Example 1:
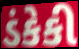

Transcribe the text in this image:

ડંકેકી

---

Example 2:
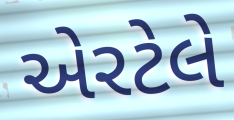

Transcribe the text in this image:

એરટેલે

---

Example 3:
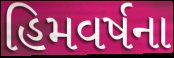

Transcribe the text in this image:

હિમવર્ષના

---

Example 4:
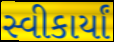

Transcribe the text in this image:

સ્વીકાર્યાં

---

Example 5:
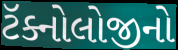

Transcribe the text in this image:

ટૅક્નોલોજીનો